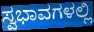
ಸ್ವಭಾವಗಳಲ್ಲಿ